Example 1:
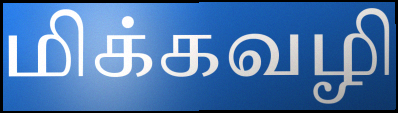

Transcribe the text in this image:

மிக்கவழி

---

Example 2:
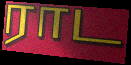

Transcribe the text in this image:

ராட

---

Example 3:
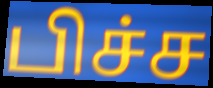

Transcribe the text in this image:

பிச்ச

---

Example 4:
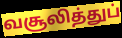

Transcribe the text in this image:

வசூலித்துப்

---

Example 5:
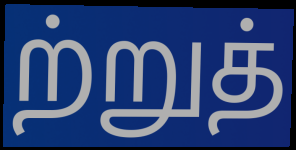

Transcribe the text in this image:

ற்றுத்